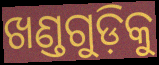
ଖଣ୍ଡଗୁଡ଼ିକୁ